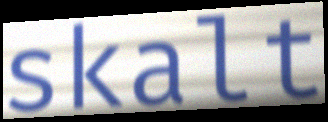
skalt